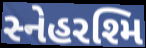
સ્નેહરશ્મિ